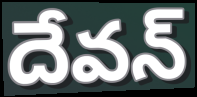
దేవన్